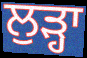
ਲੁੜ੍ਹਾ